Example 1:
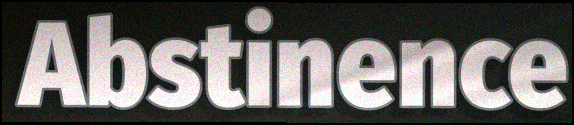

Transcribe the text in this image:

Abstinence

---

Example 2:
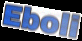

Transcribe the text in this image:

Eboli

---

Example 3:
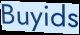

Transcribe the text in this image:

Buyids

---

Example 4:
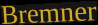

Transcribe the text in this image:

Bremner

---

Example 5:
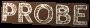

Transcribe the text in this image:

PROBE